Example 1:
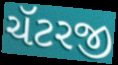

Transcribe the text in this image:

ચૅટરજી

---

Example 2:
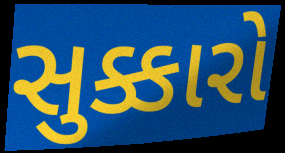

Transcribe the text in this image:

સુક્કારો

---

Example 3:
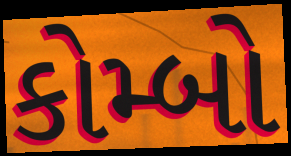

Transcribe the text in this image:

કોમ્બો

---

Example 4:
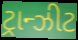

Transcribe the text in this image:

ટ્રાન્ઝીટ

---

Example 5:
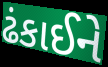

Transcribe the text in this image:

ઢંકાઈને